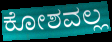
ಕೋಶವಲ್ಲ